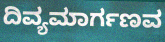
ದಿವ್ಯಮಾರ್ಗಣವ